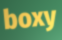
boxy